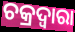
ଚକ୍ରଦ୍ୱାରା